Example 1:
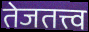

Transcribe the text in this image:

तेजतत्त्व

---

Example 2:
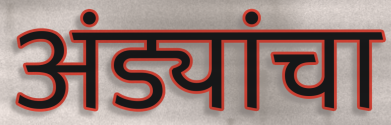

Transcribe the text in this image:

अंड्यांचा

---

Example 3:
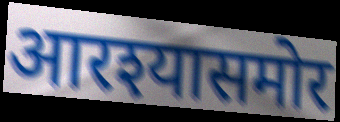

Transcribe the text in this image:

आरश्यासमोर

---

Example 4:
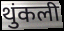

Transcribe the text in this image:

थुंकली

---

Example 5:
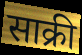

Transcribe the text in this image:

साक्री